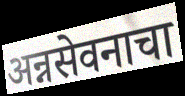
अन्नसेवनाचा